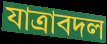
যাত্রাবদল